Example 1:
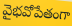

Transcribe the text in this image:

వైభవోపేతంగా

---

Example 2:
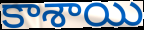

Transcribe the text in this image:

కాశాయి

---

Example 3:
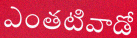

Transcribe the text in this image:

ఎంతటివాడో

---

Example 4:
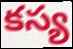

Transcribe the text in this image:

కస్య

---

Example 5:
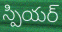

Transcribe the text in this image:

స్పియర్